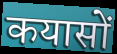
कयासों